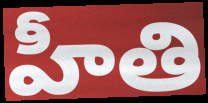
హీతి